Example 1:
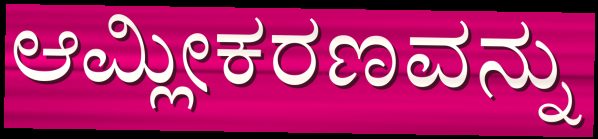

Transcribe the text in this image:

ಆಮ್ಲೀಕರಣವನ್ನು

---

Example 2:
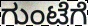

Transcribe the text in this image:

ಗುಂಟೆಗೆ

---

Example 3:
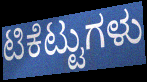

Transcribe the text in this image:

ಟಿಕೆಟ್ಟುಗಳು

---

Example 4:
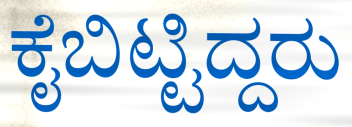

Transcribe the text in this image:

ಕೈಬಿಟ್ಟಿದ್ದರು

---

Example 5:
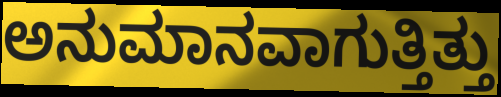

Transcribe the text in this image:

ಅನುಮಾನವಾಗುತ್ತಿತ್ತು